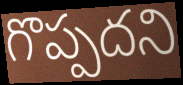
గొప్పదని